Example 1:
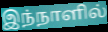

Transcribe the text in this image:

இந்நாளில்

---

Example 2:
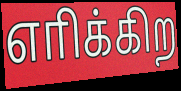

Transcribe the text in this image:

எரிக்கிற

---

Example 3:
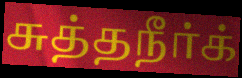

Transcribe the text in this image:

சுத்தநீர்க்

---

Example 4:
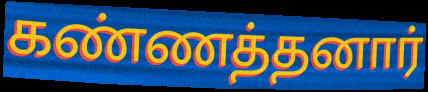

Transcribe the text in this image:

கண்ணத்தனார்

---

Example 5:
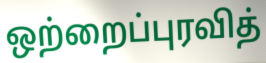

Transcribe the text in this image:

ஒற்றைப்புரவித்